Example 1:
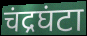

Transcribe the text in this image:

चंद्रघंटा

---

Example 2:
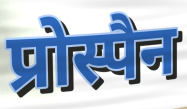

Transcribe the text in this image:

प्रोस्पैन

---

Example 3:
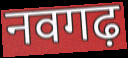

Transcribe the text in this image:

नवगढ़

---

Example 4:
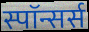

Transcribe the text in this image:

स्पॉन्सर्स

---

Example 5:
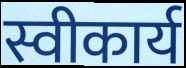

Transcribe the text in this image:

स्वीकार्य